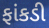
ફાંકડી